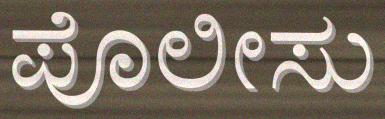
ಪೊಲೀಸು